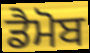
ਡੈਮੋਬ